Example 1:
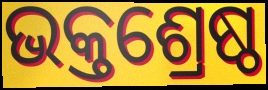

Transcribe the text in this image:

ଭକ୍ତଶ୍ରେଷ୍ଠ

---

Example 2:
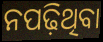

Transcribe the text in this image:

ନପଢ଼ିଥିବା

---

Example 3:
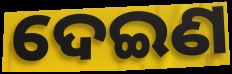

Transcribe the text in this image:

ଦେଇଣ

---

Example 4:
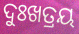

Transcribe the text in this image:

ଦୁଃଖତ୍ରୟ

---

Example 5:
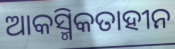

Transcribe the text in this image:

ଆକସ୍ମିକତାହୀନ